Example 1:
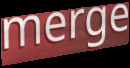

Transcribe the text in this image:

merge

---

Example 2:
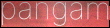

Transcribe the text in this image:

pangam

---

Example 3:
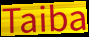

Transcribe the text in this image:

Taiba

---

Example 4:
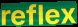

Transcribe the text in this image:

reflex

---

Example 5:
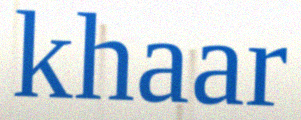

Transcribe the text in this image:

khaar